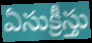
ఏసుక్రీస్తు